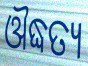
ଔଦ୍ଧତ୍ୟ